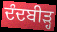
ਦੰਦਬੀੜ੍ਹ